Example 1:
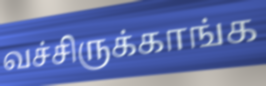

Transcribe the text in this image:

வச்சிருக்காங்க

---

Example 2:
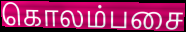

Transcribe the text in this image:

கொலம்பசை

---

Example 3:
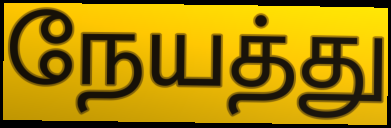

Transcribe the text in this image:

நேயத்து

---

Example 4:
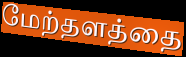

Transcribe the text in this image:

மேற்தளத்தை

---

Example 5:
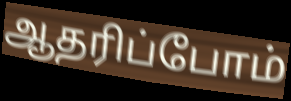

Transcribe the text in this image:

ஆதரிப்போம்